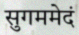
सुगममेदं